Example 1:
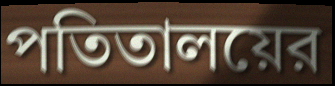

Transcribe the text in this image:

পতিতালয়ের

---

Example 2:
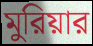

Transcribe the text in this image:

মুরিয়ার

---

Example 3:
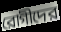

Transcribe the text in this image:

রোগীদের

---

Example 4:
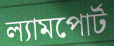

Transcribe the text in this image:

ল্যামপোর্ট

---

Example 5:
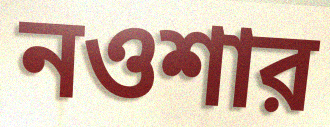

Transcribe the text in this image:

নওশার